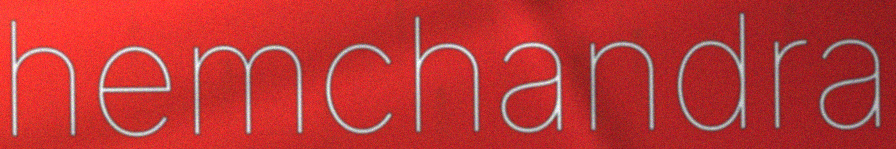
hemchandra